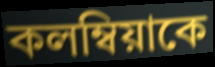
কলম্বিয়াকে